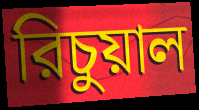
রিচুয়াল